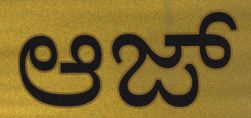
ಆಜ್